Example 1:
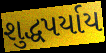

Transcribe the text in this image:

શુદ્ધપર્યાય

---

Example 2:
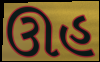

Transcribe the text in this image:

ઊહ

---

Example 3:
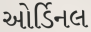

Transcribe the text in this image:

ઓર્ડિનલ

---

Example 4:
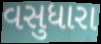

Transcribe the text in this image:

વસુધારા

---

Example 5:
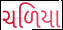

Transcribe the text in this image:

ચળિયા